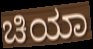
ಚಿಯಾ